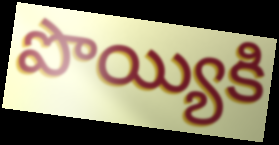
పొయ్యికి